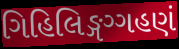
ગિહિલિઙ્ગગ્ગહણં